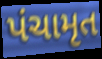
પંચામૃત